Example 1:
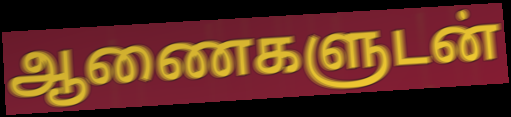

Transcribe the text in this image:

ஆணைகளுடன்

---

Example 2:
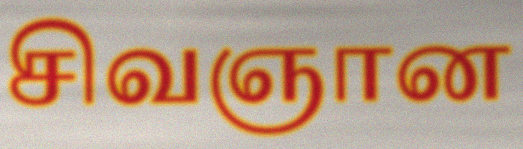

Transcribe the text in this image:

சிவஞான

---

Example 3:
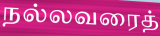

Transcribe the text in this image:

நல்லவரைத்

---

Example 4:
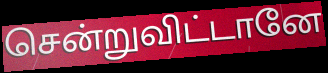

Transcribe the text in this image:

சென்றுவிட்டானே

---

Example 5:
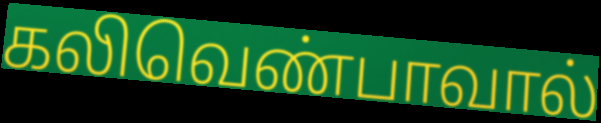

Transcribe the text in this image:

கலிவெண்பாவால்